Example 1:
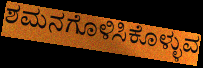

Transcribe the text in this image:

ಶಮನಗೊಳಿಸಿಕೊಳ್ಳುವ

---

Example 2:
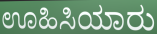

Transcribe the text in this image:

ಊಹಿಸಿಯಾರು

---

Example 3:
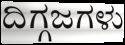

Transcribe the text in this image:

ದಿಗ್ಗಜಗಳು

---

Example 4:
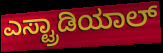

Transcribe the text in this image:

ಎಸ್ಟ್ರಾಡಿಯಾಲ್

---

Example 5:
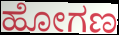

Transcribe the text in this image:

ಹೋಗಣ